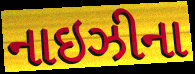
નાઇઝીના